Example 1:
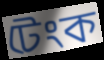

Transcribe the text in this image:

টেংক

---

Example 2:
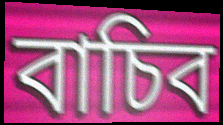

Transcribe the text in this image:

বাচিব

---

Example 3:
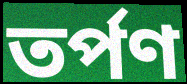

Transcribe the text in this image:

তৰ্পণ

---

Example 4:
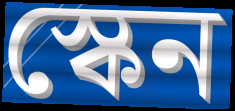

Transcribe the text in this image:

স্কেন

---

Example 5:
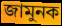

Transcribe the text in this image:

জামুনক